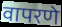
वापरणे